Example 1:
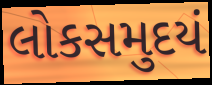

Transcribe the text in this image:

લોકસમુદયં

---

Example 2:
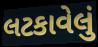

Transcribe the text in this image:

લટકાવેલું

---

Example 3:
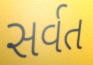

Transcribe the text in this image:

સર્વત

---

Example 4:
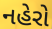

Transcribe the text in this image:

નહેરો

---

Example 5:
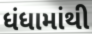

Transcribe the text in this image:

ધંધામાંથી